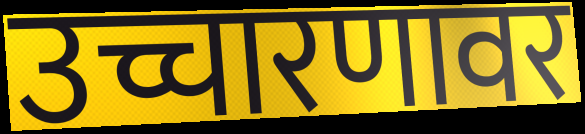
उच्चारणावर